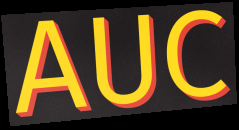
AUC